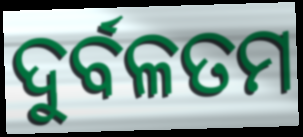
ଦୁର୍ବଳତମ